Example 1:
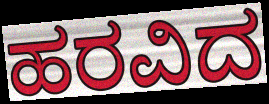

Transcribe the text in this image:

ಹರವಿದ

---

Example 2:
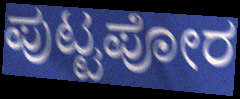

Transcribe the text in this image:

ಪುಟ್ಟಪೋರ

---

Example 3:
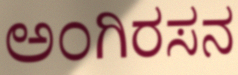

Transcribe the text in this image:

ಅಂಗಿರಸನ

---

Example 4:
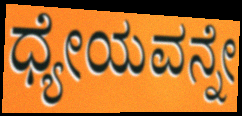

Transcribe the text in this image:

ಧ್ಯೇಯವನ್ನೇ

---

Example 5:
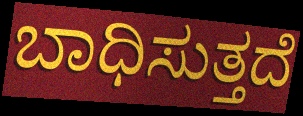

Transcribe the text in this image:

ಬಾಧಿಸುತ್ತದೆ